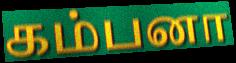
கம்பனா